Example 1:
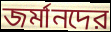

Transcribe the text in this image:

জর্মানদের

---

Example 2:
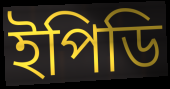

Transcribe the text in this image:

ইপিডি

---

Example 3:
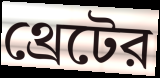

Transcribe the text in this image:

থ্রেটের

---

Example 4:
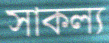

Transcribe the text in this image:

সাকল্য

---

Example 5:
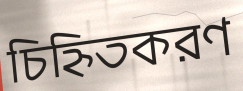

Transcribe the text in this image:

চিহ্নিতকরণ